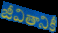
జీవితానికీ